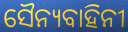
ସୈନ୍ଯବାହିନୀ